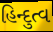
હિન્દુત્વ